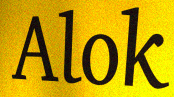
Alok